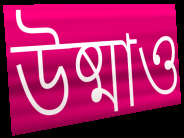
উষ্মাও